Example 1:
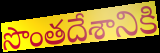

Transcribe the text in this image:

సొంతదేశానికి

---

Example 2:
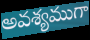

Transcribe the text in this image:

అవశ్యముగా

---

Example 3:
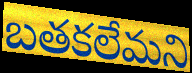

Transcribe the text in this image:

బతకలేమని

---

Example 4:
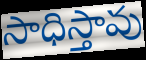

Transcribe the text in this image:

సాధిస్తావు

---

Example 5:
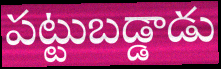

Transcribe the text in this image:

పట్టుబడ్డాడు